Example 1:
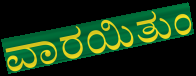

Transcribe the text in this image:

ವಾರಯಿತುಂ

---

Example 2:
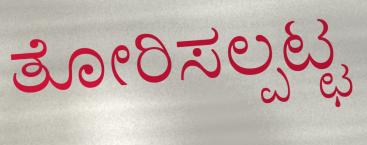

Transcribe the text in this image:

ತೋರಿಸಲ್ಪಟ್ಟ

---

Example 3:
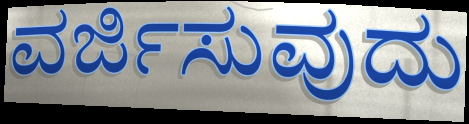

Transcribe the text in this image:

ವರ್ಜಿಸುವುದು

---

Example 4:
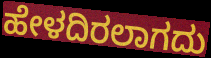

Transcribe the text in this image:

ಹೇಳದಿರಲಾಗದು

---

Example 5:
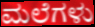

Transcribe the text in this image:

ಮಲೆಗಳು